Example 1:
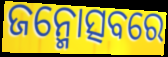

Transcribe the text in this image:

ଜନ୍ମୋତ୍ସବରେ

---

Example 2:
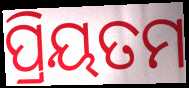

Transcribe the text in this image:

ପ୍ରିୟତମ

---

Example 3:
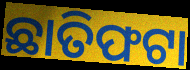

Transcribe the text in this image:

ଛାତିଫଟା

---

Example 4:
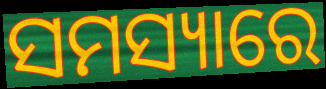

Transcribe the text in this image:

ସମସ୍ୟାରେ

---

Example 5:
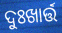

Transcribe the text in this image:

ଦୁଃଖାର୍ତ୍ତ